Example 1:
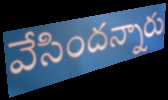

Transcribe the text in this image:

వేసిందన్నారు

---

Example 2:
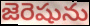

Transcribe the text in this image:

జెరెషును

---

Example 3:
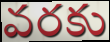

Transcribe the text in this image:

వరకు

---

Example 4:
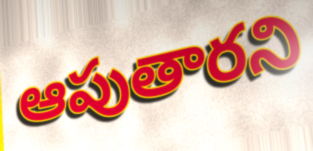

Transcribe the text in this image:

ఆపుతారని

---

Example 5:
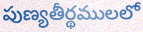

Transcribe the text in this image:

పుణ్యతీర్థములలో